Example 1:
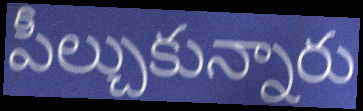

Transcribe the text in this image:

పీల్చుకున్నారు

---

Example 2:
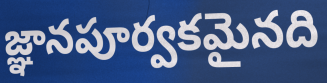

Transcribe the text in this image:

జ్ఞానపూర్వకమైనది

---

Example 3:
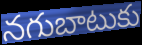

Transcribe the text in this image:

నగుబాటుకు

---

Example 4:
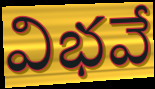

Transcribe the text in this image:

విభవే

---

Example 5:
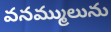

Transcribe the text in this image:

వనమ్ములును